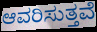
ಆವರಿಸುತ್ತವೆ